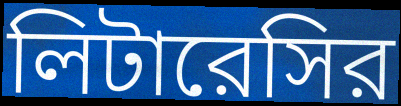
লিটারেসির